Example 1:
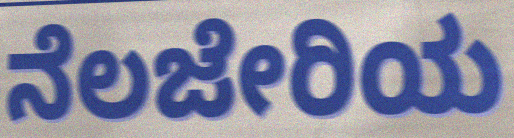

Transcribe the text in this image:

ನೆಲಜೇರಿಯ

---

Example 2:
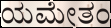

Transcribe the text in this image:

ಯಮೇತಂ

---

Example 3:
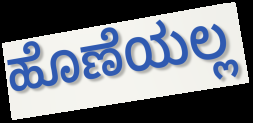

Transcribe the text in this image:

ಹೊಣೆಯಲ್ಲ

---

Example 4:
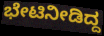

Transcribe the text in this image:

ಭೇಟಿನೀಡಿದ್ದ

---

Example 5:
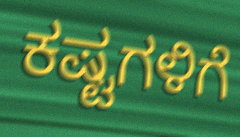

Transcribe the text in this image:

ಕಷ್ಟಗಳಿಗೆ